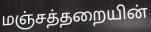
மஞ்சத்தறையின்